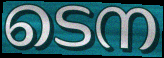
ടെന